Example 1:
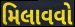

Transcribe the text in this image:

મિલાવવો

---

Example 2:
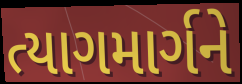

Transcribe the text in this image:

ત્યાગમાર્ગને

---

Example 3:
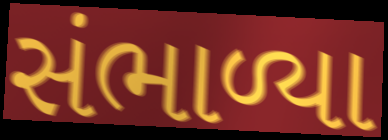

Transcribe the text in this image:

સંભાળ્યા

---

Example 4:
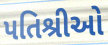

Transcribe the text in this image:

પતિશ્રીઓ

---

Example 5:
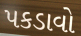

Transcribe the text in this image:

પકડાવો